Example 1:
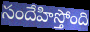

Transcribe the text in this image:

సందేహిస్తోంది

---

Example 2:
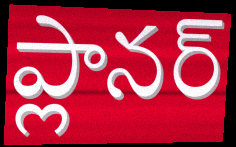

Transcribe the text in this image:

ప్లానర్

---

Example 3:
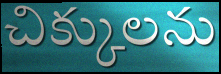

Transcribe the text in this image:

చిక్కులను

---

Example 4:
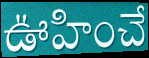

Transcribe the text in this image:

ఊహించే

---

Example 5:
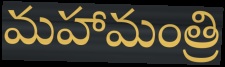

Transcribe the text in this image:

మహామంత్రి